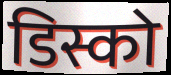
डिस्को